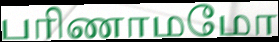
பரிணாமமோ